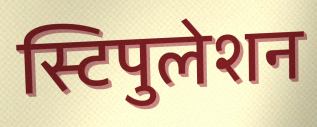
स्टिपुलेशन